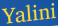
Yalini